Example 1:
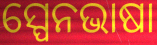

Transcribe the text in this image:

ସ୍ପେନଭାଷା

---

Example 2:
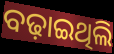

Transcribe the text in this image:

ବଢ଼ାଇଥିଲି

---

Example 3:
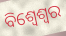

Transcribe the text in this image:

ବିଶ୍ୱେଶ୍ୱର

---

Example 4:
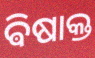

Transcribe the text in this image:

ଵିଷାକ୍ତ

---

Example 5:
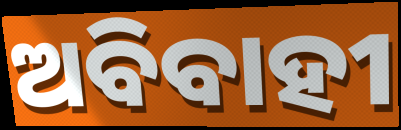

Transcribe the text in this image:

ଅବିବାହୀ